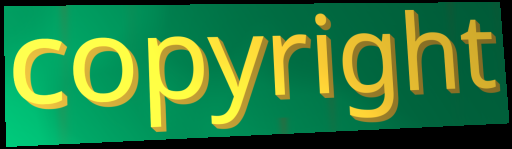
copyright